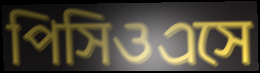
পিসিওএসে